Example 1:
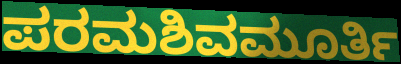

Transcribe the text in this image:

ಪರಮಶಿವಮೂರ್ತಿ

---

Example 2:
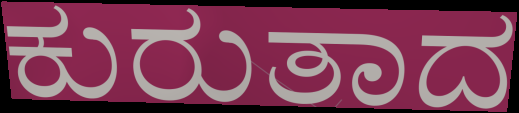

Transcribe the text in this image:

ಕುರುತಾದ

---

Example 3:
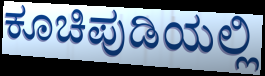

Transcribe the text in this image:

ಕೂಚಿಪುಡಿಯಲ್ಲಿ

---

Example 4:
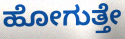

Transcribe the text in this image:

ಹೋಗುತ್ತೇ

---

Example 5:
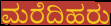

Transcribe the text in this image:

ಮರೆದಿಹರು